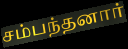
சம்பந்தனார்